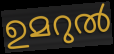
ഉമറുൽ